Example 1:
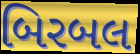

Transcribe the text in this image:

બિરબલ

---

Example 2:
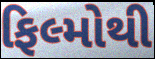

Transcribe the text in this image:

ફિલ્મોથી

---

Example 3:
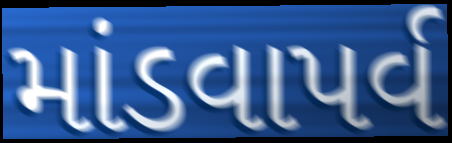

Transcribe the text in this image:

માંડવાપર્વ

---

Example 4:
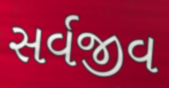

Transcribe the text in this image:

સર્વજીવ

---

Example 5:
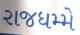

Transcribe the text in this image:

રાજધમ્મે